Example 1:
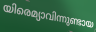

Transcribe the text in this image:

യിരെമ്യാവിന്നുണ്ടായ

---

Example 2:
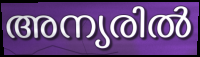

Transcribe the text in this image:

അന്യരിൽ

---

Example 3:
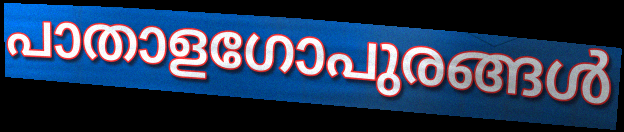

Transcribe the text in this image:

പാതാളഗോപുരങ്ങൾ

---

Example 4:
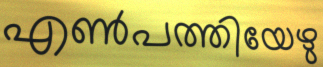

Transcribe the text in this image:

എൺപത്തിയേഴു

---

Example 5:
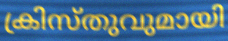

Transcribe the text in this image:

ക്രിസ്തുവുമായി